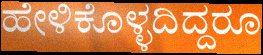
ಹೇಳಿಕೊಳ್ಳದಿದ್ದರೂ